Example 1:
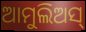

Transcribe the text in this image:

ଆମୁଲିଅସ୍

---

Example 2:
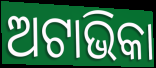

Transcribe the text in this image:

ଅଟାଭିକା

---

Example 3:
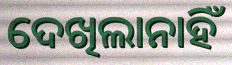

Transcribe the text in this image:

ଦେଖିଲାନାହିଁ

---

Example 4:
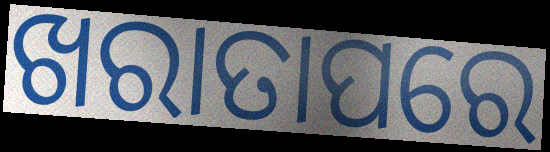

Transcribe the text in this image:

ଖରାତାପରେ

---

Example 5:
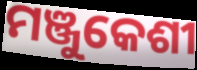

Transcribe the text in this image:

ମଞ୍ଜୁକେଶୀ